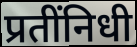
प्रतींनिधी